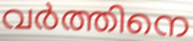
വർത്തിനെ